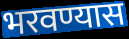
भरवण्यास